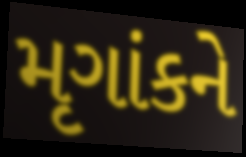
મૃગાંકને